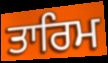
ਤਾਰਿਮ